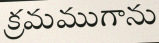
క్రమముగాను